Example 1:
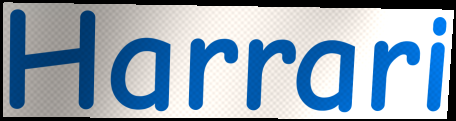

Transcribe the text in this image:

Harrari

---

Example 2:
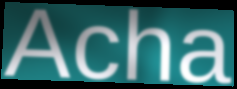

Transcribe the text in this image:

Acha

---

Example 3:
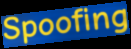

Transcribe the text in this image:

Spoofing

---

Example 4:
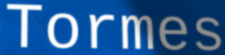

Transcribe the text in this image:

Tormes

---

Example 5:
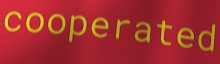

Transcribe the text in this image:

cooperated